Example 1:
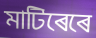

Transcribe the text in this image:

মাটিৰেৰে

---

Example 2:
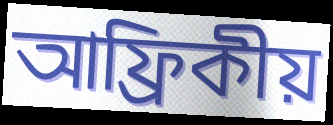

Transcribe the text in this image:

আফ্ৰিকীয়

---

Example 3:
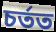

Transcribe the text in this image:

চৰ্তত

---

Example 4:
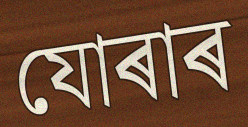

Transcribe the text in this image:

যোৰাৰ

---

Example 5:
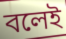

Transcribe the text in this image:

বলেই